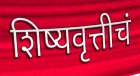
शिष्यवृत्तीचं